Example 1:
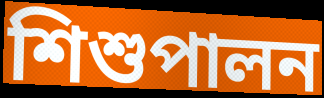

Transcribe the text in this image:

শিশুপালন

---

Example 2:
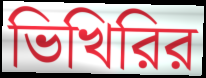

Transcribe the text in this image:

ভিখিরির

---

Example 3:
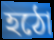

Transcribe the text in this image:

হঠো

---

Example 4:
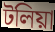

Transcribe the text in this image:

টলিয়া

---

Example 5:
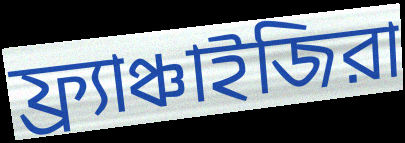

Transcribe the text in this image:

ফ্র্যাঞ্চাইজিরা